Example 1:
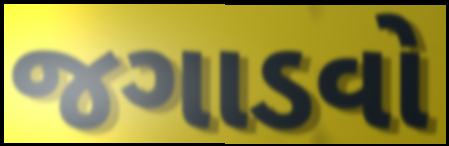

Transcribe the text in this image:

જગાડવો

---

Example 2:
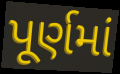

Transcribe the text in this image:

પૂર્ણમાં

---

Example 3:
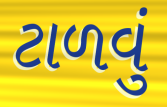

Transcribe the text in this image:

ટાળવું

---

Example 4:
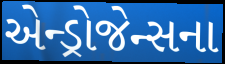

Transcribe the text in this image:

એન્ડ્રોજેન્સના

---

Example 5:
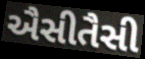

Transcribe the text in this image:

ઐસીતૈસી